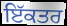
ਇੱਕਤਰ